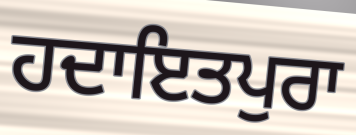
ਹਦਾਇਤਪੁਰਾ